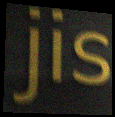
jis